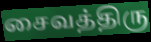
சைவத்திரு